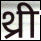
थ्री